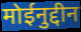
मोईनुद्दीन